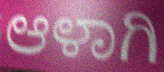
ಆಳಾಗಿ